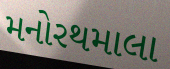
મનોરથમાલા